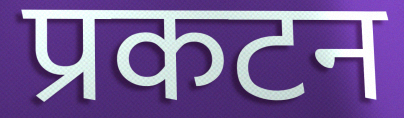
प्रकटन